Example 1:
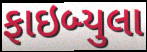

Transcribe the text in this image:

ફાઇબ્યુલા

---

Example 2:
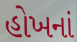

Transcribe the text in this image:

હોખનાં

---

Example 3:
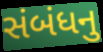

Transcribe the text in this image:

સંબંધનુ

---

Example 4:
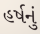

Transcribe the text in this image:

હર્ષનું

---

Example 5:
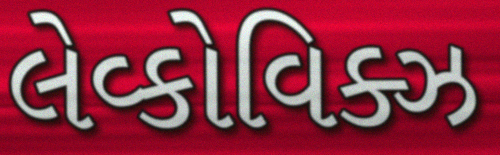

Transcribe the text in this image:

લેવ્કોવિક્ઝ